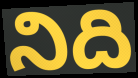
నిది